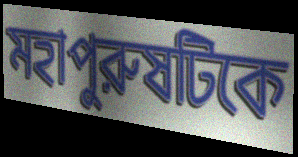
মহাপুরুষটিকে